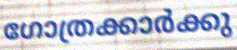
ഗോത്രക്കാർക്കു